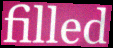
filled